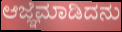
ಆಜ್ಞೆಮಾಡಿದನು